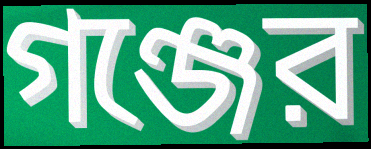
গঞ্জের